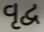
વૃદ્વ